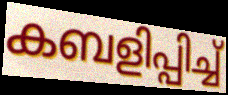
കബളിപ്പിച്ച്